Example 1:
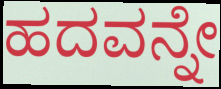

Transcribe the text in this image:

ಹದವನ್ನೇ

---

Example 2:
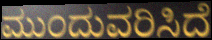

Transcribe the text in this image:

ಮುಂದುವರಿಸಿದೆ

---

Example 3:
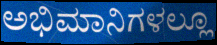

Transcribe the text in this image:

ಅಭಿಮಾನಿಗಳಲ್ಲೂ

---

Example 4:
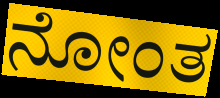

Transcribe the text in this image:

ನೋಂತ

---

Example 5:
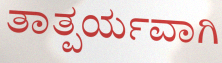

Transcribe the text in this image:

ತಾತ್ಪರ್ಯವಾಗಿ